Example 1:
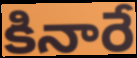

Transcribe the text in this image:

కినారే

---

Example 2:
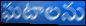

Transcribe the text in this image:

ఘటాలను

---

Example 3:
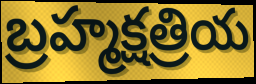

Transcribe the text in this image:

బ్రహ్మక్షత్రియ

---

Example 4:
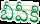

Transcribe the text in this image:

బీపీకి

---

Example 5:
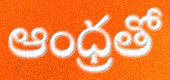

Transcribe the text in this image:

ఆంధ్రతో